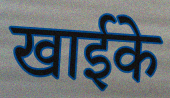
खाईके